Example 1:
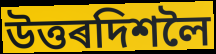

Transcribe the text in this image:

উত্তৰদিশলৈ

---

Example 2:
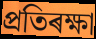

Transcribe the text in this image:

প্ৰতিৰক্ষা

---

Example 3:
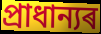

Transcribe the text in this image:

প্ৰাধান্যৰ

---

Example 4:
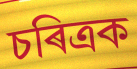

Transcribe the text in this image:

চৰিত্ৰক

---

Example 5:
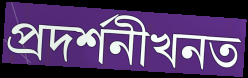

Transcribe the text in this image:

প্ৰদৰ্শনীখনত